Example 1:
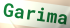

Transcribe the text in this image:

Garima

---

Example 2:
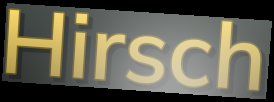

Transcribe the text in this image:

Hirsch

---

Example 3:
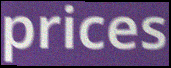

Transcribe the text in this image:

prices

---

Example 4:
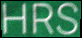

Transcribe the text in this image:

HRS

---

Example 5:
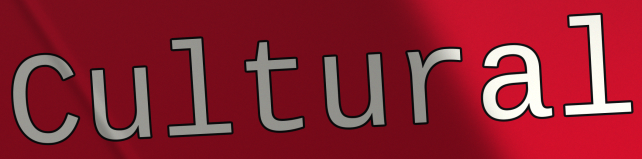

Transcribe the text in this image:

Cultural